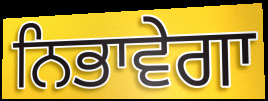
ਨਿਭਾਵੇਗਾ